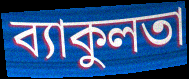
ব্যাকুলতা